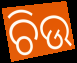
ଚିଉ